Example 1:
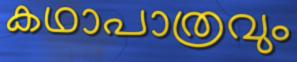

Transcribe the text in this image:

കഥാപാത്രവും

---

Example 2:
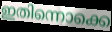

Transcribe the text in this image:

ഇതിന്നൊക്കെ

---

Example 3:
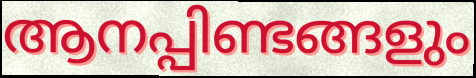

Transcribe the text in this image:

ആനപ്പിണ്ടങ്ങളും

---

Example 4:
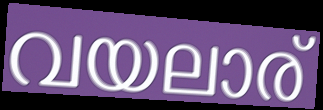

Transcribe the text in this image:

വയലാര്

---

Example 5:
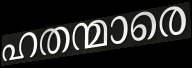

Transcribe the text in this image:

ഹതന്മാരെ